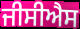
ਜੀਸੀਐਸ